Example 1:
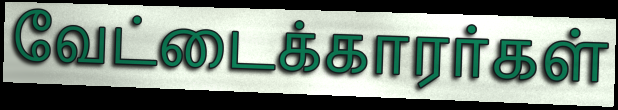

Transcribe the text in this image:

வேட்டைக்காரர்கள்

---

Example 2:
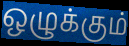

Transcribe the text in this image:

ஒழுக்கும்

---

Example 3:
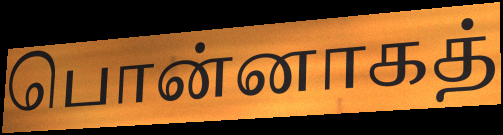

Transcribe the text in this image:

பொன்னாகத்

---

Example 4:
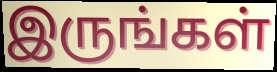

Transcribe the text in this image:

இருங்கள்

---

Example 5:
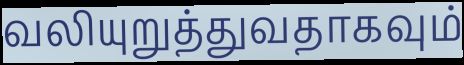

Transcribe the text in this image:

வலியுறுத்துவதாகவும்